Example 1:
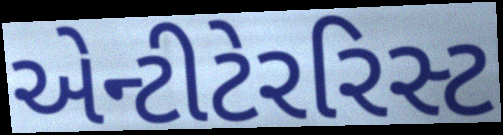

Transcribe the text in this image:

એન્ટીટેરરિસ્ટ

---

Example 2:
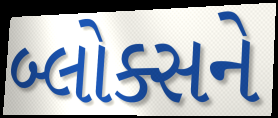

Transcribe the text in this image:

બ્લોક્સને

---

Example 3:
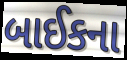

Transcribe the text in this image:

બાઈકના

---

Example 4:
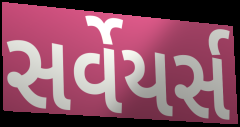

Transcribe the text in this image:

સર્વેયર્સ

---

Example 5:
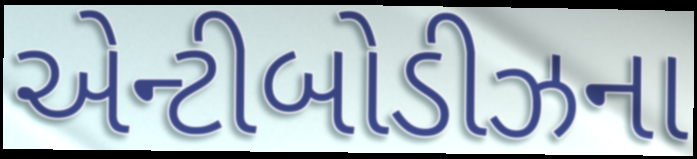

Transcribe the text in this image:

એન્ટીબોડીઝના